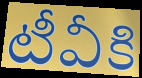
టీవీకి